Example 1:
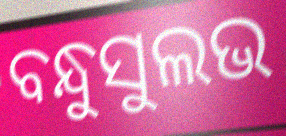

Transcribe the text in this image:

ବନ୍ଧୁସୁଲଭ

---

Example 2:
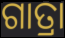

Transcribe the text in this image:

ଗାତ୍ରା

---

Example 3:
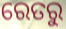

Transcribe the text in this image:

ରେତରୁ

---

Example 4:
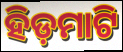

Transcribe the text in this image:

ହିଡ଼ମାଟି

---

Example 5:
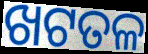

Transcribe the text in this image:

ଖଟତଳ